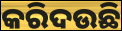
କରିଦଉଛି